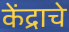
केंद्राचे